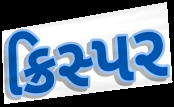
ક્રિસ્પર